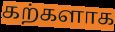
கற்களாக